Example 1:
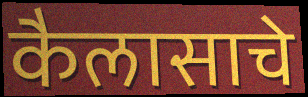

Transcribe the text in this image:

कैलासाचे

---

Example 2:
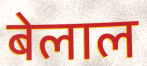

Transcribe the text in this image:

बेलाल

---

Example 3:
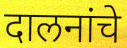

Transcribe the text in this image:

दालनांचे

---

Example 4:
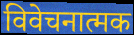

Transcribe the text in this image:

विवेचनात्मक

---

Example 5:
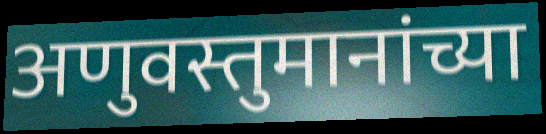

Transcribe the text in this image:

अणुवस्तुमानांच्या